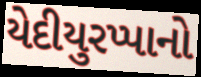
યેદીયુરપ્પાનો